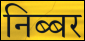
निब्बर